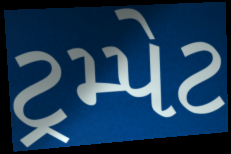
ટ્રમ્પેટ